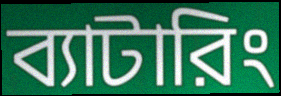
ব্যাটারিং